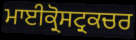
ਮਾਈਕ੍ਰੋਸਟ੍ਰਕਚਰ